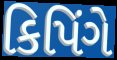
કિપિંગે